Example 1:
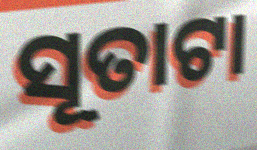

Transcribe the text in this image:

ସୂତାଟା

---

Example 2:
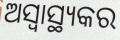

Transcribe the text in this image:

ଅସ୍ୱାସ୍ଥ୍ୟକର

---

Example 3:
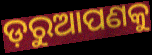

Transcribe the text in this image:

ଡ଼ରୁଆପଣକୁ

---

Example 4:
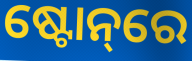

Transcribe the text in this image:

ଷ୍ଟୋନ୍‌ରେ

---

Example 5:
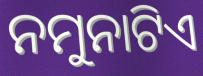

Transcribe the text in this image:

ନମୁନାଟିଏ